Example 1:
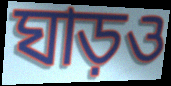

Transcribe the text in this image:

ঘাড়ও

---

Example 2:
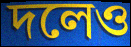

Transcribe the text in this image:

দলেও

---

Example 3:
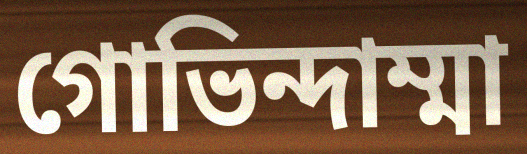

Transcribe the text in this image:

গোভিন্দাম্মা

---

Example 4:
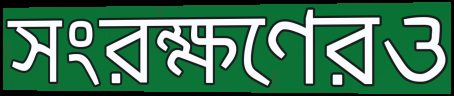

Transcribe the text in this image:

সংরক্ষণেরও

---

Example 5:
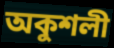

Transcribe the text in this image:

অকুশলী